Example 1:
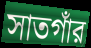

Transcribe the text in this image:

সাতগাঁর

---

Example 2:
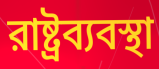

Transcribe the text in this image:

রাষ্ট্রব্যবস্থা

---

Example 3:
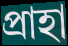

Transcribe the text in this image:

প্রাহা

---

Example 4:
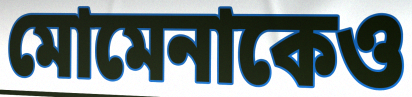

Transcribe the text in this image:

মোমেনাকেও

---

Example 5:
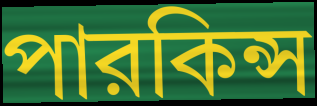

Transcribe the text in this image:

পারকিন্স